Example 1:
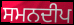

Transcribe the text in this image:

ਸਮਨਦੀਪ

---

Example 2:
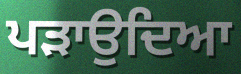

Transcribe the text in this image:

ਪੜਾਉਦਿਆ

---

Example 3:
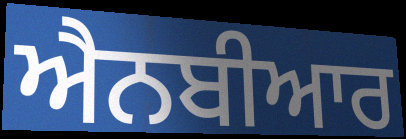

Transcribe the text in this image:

ਐਨਬੀਆਰ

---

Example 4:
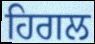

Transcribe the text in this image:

ਹਿਗਲ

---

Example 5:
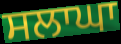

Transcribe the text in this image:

ਸਲਾਘਾ